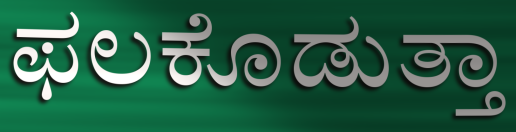
ಫಲಕೊಡುತ್ತಾ